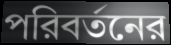
পরিবর্তনের